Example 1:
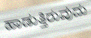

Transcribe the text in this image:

ಹಾಡುತ್ತಿರುವುದು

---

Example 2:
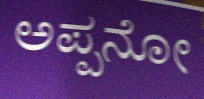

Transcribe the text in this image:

ಅಪ್ಪನೋ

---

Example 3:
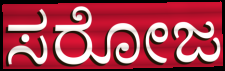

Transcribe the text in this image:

ಸರೋಜ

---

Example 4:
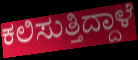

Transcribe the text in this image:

ಕಲಿಸುತ್ತಿದ್ದಾಳೆ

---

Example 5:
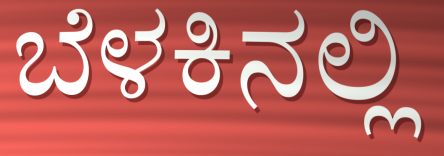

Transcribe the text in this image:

ಬೆಳಕಿನಲ್ಲಿ